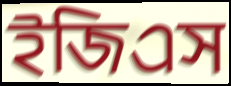
ইজিএস